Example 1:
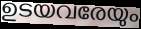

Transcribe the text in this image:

ഉടയവരേയും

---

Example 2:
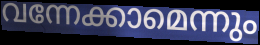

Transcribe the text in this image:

വന്നേക്കാമെന്നും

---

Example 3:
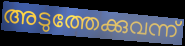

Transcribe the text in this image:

അടുത്തേക്കുവന്ന്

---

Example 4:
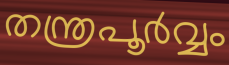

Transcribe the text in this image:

തന്ത്രപൂർവ്വം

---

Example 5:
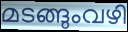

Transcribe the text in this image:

മടങ്ങുംവഴി